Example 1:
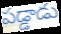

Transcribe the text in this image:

పడ్డాడు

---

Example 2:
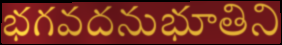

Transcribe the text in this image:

భగవదనుభూతిని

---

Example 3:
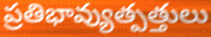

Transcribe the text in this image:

ప్రతిభావ్యుత్పత్తులు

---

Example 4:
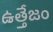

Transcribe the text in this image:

ఉత్తేజం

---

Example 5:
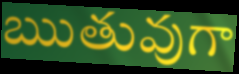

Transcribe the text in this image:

ఋతువుగా